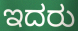
ಇದರು